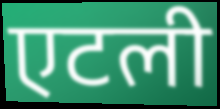
एटली